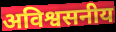
अविश्वसनीय